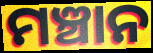
ମଞ୍ଚାନ